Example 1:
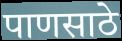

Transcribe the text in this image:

पाणसाठे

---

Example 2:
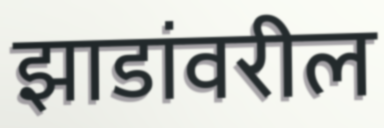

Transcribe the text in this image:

झाडांवरील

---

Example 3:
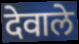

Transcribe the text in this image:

देवाले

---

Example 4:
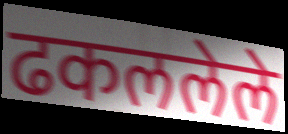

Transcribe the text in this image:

ढकललेले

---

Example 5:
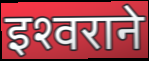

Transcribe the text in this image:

इश्वराने